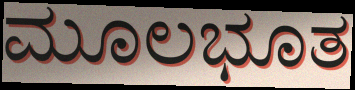
ಮೂಲಭೂತ